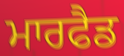
ਮਾਰਫੈਡ